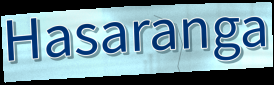
Hasaranga